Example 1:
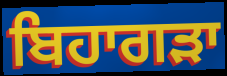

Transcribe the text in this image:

ਬਿਹਾਗੜਾ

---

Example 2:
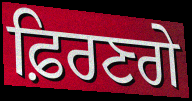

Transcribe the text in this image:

ਫ਼ਿਰਣਗੇ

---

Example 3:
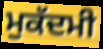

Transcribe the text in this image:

ਮੁਕੱਦਮੀ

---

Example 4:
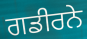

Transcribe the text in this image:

ਗਡੀਰਨੇ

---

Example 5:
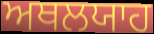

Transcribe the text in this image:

ਅਥਲਯਾਹ